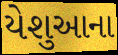
યેશુઆના